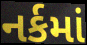
નર્કમાં